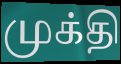
முக்தி